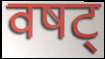
वषट्